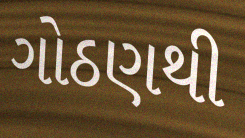
ગોઠણથી